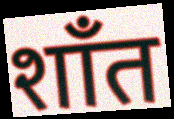
शाँत